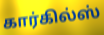
கார்கில்ஸ்